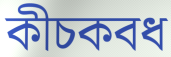
কীচকবধ